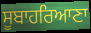
ਸੂਬਾਹਰਿਆਣਾ